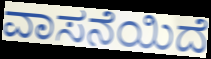
ವಾಸನೆಯಿದೆ